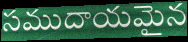
సముదాయమైన